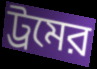
ট্রমের